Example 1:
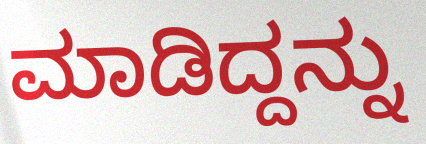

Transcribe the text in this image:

ಮಾಡಿದ್ದನ್ನು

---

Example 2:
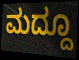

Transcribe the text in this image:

ಮದ್ದೂ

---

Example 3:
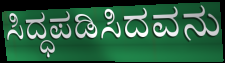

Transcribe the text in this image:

ಸಿದ್ಧಪಡಿಸಿದವನು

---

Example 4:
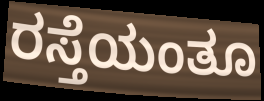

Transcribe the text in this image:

ರಸ್ತೆಯಂತೂ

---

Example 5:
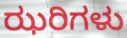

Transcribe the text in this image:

ಝರಿಗಳು